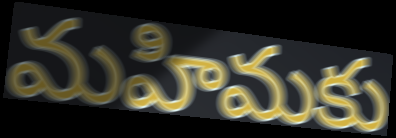
మహిమకు